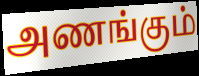
அணங்கும்